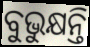
ବୁଭୁକ୍ଷନ୍ତି